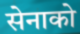
सेनाको